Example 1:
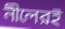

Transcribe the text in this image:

নীলেরই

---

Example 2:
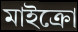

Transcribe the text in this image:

মাইক্রো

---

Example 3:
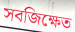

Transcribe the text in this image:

সবজিক্ষেত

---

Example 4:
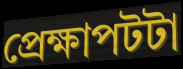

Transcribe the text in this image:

প্রেক্ষাপটটা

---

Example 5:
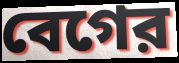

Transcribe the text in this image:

বেগের